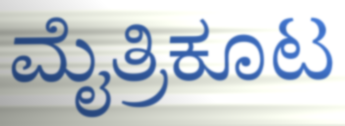
ಮೈತ್ರಿಕೂಟ